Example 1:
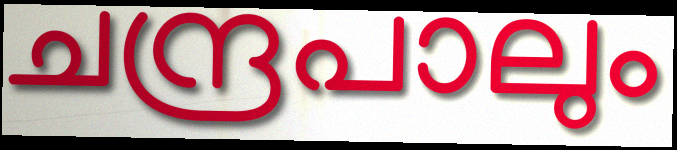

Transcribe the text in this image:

ചന്ദ്രപാലും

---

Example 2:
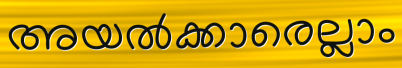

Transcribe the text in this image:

അയൽക്കാരെല്ലാം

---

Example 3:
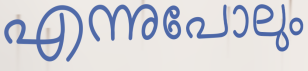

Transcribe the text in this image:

എന്നുപോലും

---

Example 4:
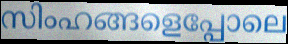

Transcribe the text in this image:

സിംഹങ്ങളെപ്പോലെ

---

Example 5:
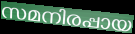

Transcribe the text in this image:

സമനിരപ്പായ